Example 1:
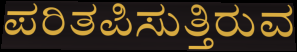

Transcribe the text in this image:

ಪರಿತಪಿಸುತ್ತಿರುವ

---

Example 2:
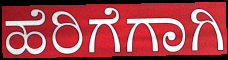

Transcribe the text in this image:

ಹೆರಿಗೆಗಾಗಿ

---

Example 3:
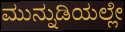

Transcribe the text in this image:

ಮುನ್ನುಡಿಯಲ್ಲೇ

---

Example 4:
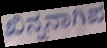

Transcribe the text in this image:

ಖಿನ್ನನಾಗಿಪ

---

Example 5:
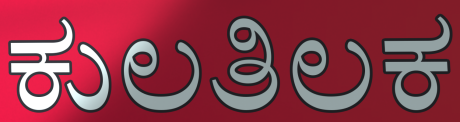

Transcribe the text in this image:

ಕುಲತಿಲಕ